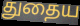
துதைய